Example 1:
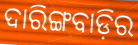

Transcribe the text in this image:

ଦାରିଙ୍ଗବାଡ଼ିର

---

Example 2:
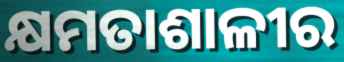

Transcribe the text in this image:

କ୍ଷମତାଶାଳୀର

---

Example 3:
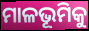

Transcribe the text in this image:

ମାଳଭୂମିକୁ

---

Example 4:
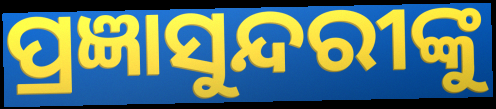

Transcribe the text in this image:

ପ୍ରଜ୍ଞାସୁନ୍ଦରୀଙ୍କୁ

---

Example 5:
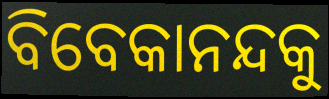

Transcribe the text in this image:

ବିବେକାନନ୍ଦକୁ